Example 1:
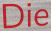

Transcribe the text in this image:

Die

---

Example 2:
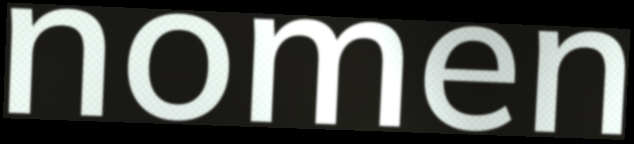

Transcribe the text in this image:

nomen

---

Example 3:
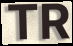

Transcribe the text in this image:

TR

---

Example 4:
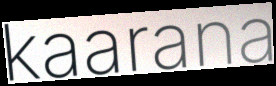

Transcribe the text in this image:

kaarana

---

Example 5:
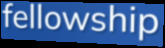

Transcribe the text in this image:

fellowship